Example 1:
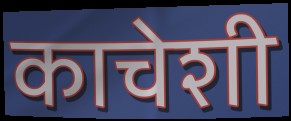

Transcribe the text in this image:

काचेशी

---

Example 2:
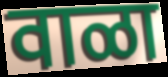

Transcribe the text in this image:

वाळा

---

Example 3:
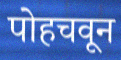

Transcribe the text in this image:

पोहचवून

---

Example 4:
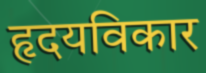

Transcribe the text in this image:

हृदयविकार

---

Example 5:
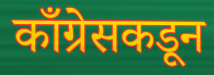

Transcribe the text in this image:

काँग्रेसकडून